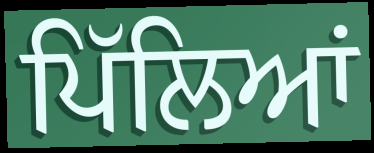
ਪਿੱਲਿਆਂ